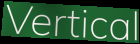
Vertical